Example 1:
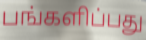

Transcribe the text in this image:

பங்களிப்பது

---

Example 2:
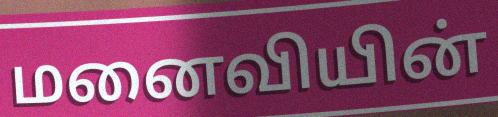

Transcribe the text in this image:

மனைவியின்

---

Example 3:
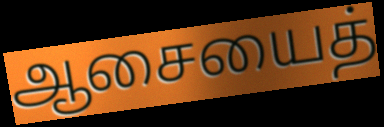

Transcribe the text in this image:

ஆசையைத்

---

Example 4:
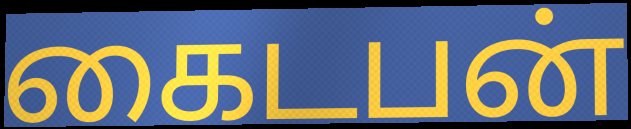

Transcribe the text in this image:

கைடபன்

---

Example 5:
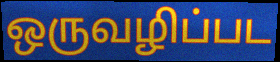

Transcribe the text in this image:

ஒருவழிப்பட